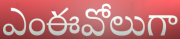
ఎంఈవోలుగా